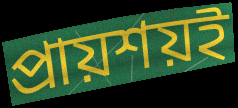
প্রায়শয়ই